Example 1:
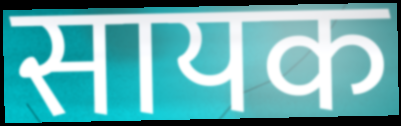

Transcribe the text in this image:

सायक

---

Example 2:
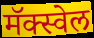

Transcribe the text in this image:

मॅक्स्वेल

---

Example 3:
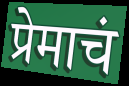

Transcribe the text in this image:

प्रेमाचं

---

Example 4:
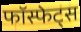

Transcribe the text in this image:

फॉस्फेट्स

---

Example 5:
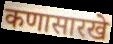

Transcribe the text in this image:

कणासारखे